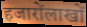
हजारोंलाखों